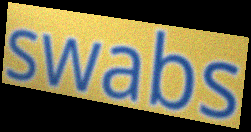
swabs